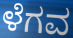
ಳೆಗವ